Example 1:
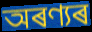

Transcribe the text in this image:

অৰণ্যৰ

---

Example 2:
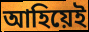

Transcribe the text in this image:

আহিয়েই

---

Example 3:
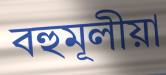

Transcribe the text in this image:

বহুমূলীয়া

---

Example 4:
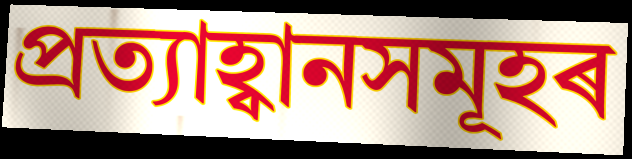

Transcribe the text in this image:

প্ৰত্যাহ্বানসমূহৰ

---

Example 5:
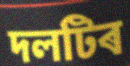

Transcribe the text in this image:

দলটিৰ